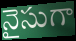
నైసుగా